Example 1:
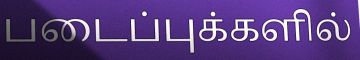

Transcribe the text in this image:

படைப்புக்களில்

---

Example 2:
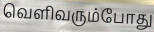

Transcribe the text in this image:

வெளிவரும்போது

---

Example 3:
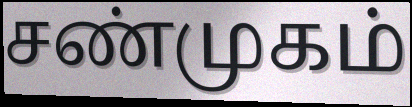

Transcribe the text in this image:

சண்முகம்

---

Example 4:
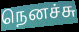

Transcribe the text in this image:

நெனச்சு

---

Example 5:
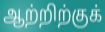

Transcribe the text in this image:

ஆற்றிற்குக்